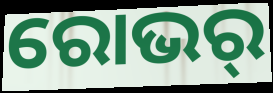
ରୋଭର୍